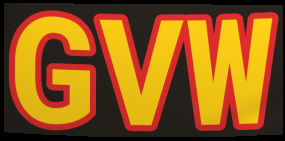
GVW